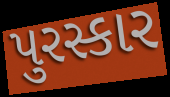
પુરસ્કાર